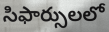
సిఫార్సులలో